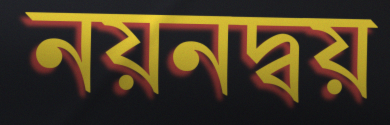
নয়নদ্বয়